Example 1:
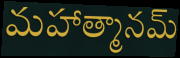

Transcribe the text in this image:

మహాత్మానమ్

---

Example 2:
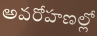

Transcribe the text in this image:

అవరోహణల్లో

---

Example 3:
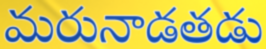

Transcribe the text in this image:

మరునాడతడు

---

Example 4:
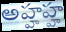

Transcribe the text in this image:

అహ్హహ్హ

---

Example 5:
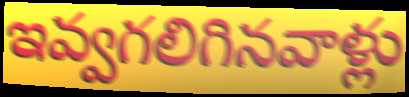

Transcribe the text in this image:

ఇవ్వగలిగినవాళ్లు